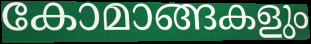
കോമാങ്ങകളും